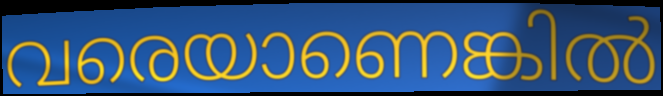
വരെയാണെങ്കിൽ